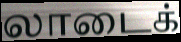
லாடைக்